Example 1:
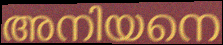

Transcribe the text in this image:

അനിയനെ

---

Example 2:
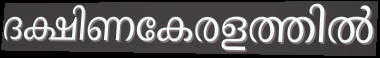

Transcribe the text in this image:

ദക്ഷിണകേരളത്തിൽ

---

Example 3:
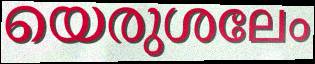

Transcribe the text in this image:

യെരുശലേം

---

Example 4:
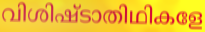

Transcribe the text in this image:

വിശിഷ്ടാതിഥികളേ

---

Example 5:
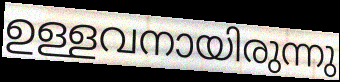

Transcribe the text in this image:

ഉള്ളവനായിരുന്നു